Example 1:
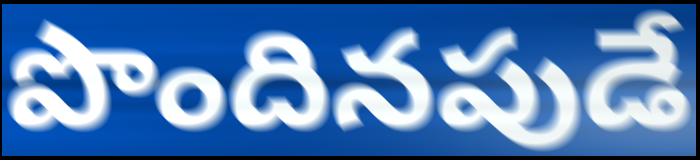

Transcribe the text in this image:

పొందినపుడే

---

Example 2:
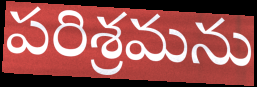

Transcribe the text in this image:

పరిశ్రమను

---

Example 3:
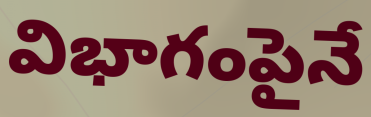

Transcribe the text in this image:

విభాగంపైనే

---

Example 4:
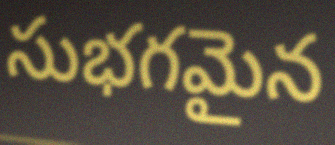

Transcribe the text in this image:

సుభగమైన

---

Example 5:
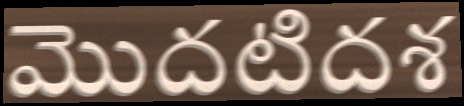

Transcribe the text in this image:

మొదటిదశ